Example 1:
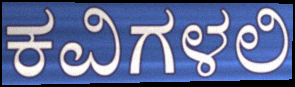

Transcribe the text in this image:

ಕವಿಗಳಲಿ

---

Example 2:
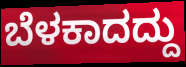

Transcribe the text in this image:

ಬೆಳಕಾದದ್ದು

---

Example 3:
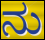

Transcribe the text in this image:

ನು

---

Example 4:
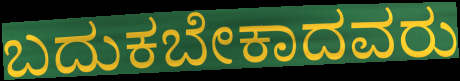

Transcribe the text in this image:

ಬದುಕಬೇಕಾದವರು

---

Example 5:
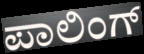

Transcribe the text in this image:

ಪಾಲಿಂಗ್